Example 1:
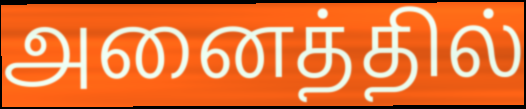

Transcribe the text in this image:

அனைத்தில்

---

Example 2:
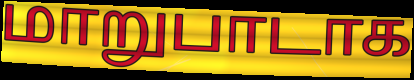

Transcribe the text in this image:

மாறுபாடாக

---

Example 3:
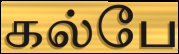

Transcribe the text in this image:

கல்பே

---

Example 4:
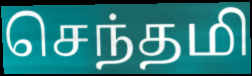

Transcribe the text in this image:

செந்தமி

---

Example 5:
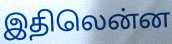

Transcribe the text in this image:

இதிலென்ன